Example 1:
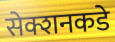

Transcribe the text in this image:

सेक्शनकडे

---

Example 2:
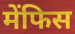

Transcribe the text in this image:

मेंफिस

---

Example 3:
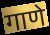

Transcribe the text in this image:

गाणे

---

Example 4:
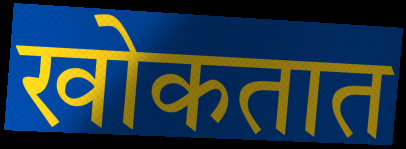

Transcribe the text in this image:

खोकतात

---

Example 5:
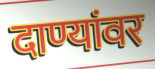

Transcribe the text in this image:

दाण्यांवर